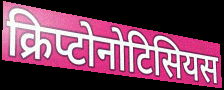
क्रिप्टोनोटिसियस